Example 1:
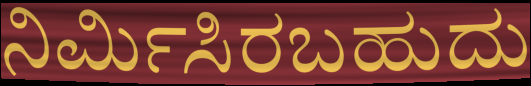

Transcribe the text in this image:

ನಿರ್ಮಿಸಿರಬಹುದು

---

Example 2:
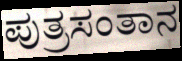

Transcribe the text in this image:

ಪುತ್ರಸಂತಾನ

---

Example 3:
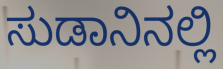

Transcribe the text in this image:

ಸುಡಾನಿನಲ್ಲಿ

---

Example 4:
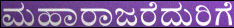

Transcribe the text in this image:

ಮಹಾರಾಜರೆದುರಿಗೆ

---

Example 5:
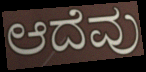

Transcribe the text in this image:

ಆದೆವು